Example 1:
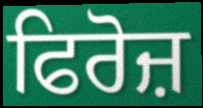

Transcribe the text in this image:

ਫਿਰੋਜ਼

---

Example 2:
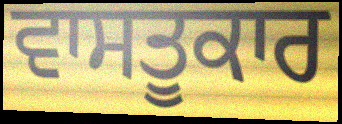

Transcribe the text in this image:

ਵਾਸਤੂਕਾਰ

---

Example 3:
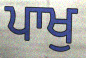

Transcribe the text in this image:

ਪਾਖੁ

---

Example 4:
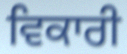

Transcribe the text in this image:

ਵਿਕਾਰੀ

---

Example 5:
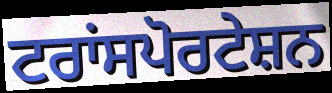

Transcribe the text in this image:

ਟਰਾਂਸਪੋਰਟੇਸ਼ਨ